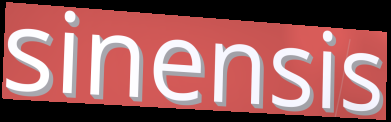
sinensis